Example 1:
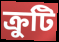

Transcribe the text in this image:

ক্ৰুটি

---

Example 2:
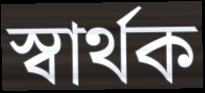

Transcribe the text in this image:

স্বাৰ্থক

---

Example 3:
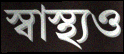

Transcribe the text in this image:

স্বাস্থ্যও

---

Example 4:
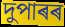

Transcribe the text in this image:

দুপাৰৰ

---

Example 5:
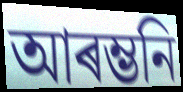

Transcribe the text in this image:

আৰম্ভনি